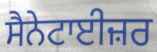
ਸੈਨੇਟਾਈਜ਼ਰ